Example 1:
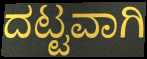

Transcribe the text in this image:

ದಟ್ಟವಾಗಿ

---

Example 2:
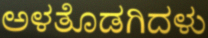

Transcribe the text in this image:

ಅಳತೊಡಗಿದಳು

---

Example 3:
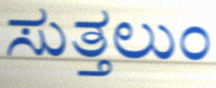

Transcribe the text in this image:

ಸುತ್ತಲುಂ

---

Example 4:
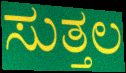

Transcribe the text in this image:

ಸುತ್ತಲ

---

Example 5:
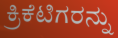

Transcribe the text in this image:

ಕ್ರಿಕೆಟಿಗರನ್ನು